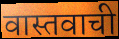
वास्तवाची